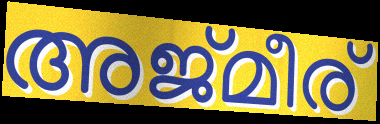
അജ്മീര്